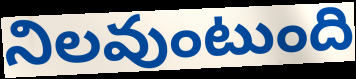
నిలవుంటుంది